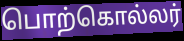
பொற்கொல்லர்